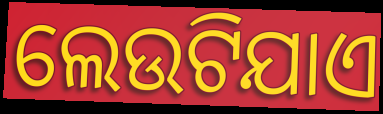
ଲେଉଟିଯାଏ